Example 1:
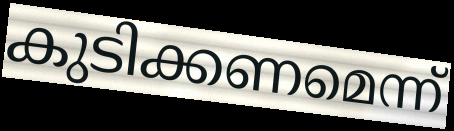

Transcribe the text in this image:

കുടിക്കണമെന്ന്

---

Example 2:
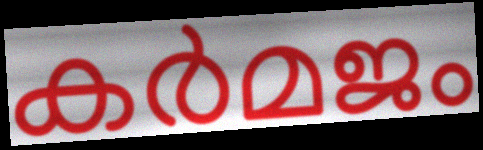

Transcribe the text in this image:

കർമജം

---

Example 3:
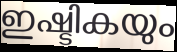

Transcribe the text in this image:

ഇഷ്ടികയും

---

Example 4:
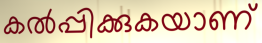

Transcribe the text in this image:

കൽപ്പിക്കുകയാണ്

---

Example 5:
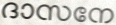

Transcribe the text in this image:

ദാസനേ